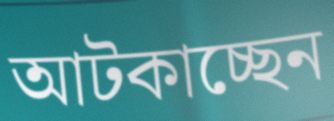
আটকাচ্ছেন